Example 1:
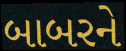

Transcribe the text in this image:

બાબરને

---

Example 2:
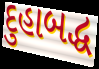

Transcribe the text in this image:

દુહાબદ્ધ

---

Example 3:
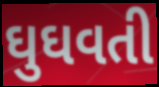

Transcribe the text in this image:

ઘુઘવતી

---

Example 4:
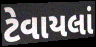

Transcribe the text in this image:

ટેવાયલાં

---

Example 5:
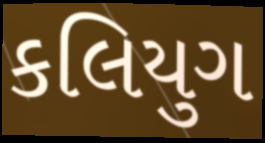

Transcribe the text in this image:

કલિયુગ